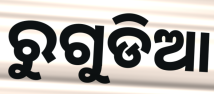
ରୁଗୁଡିଆ